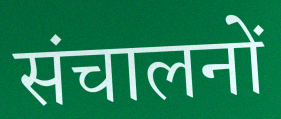
संचालनों